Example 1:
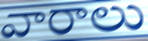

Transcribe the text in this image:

వారాలు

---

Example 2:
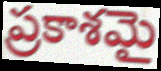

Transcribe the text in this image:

ప్రకాశమై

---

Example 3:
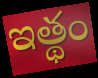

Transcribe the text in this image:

ఇత్థం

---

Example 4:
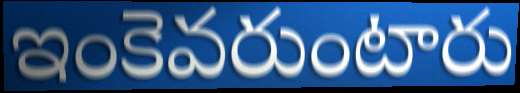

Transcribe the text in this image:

ఇంకెవరుంటారు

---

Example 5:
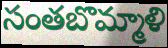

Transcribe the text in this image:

సంతబొమ్మాళి